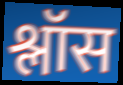
श्लॉस